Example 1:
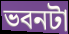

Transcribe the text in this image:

ভবনটা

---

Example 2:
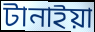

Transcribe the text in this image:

টানাইয়া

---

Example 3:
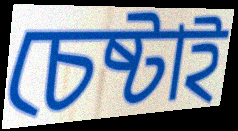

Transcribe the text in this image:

চেষ্টাই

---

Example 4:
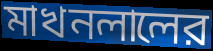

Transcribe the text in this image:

মাখনলালের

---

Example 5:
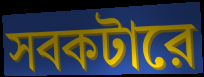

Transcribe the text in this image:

সবকটারে